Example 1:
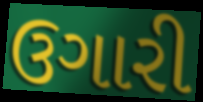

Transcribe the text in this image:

ઉગારી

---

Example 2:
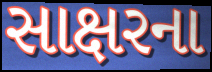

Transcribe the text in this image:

સાક્ષરના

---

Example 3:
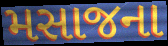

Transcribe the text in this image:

મસાજના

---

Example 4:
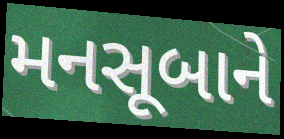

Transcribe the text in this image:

મનસૂબાને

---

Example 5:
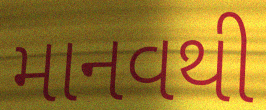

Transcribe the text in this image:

માનવથી